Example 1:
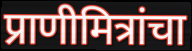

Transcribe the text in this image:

प्राणीमित्रांचा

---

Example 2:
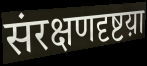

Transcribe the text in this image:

संरक्षणदृष्टय़ा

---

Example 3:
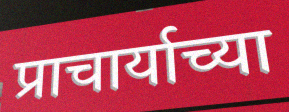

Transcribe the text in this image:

प्राचार्याच्या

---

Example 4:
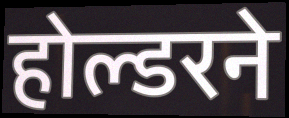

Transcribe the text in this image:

होल्डरने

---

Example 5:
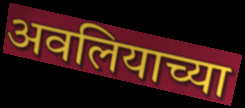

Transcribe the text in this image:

अवलियाच्या